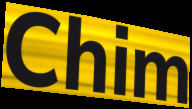
Chim